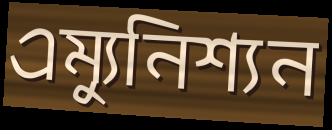
এম্যুনিশ্যন